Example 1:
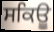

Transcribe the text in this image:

ਸਕਿਊ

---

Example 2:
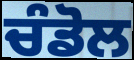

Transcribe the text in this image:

ਚੰਡੋਲ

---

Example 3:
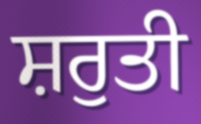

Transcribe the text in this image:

ਸ਼ਰੁਤੀ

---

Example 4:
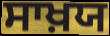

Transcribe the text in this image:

ਸਾਖ਼ਯ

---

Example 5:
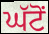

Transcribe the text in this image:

ਘੱਟੋਂ